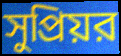
সুপ্রিয়র